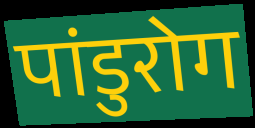
पांडुरोग